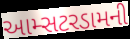
આમ્સટરડામની